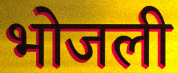
भोजली